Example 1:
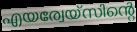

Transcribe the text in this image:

എയര്വേയ്സിന്റെ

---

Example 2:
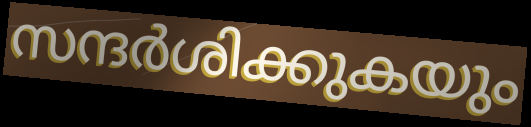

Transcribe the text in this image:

സന്ദർശിക്കുകയും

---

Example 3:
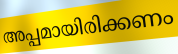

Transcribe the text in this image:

അപ്പമായിരിക്കണം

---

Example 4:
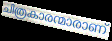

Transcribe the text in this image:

ചിത്രകാരന്മാരാണ്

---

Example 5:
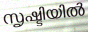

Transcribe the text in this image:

സൃഷ്ടിയിൽ